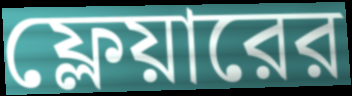
ফ্লেয়ারের